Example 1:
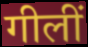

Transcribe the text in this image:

गीलीं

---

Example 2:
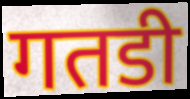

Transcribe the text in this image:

गतडी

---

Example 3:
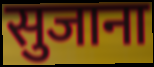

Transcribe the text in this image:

सुजाना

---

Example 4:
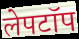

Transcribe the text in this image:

लेपटॉप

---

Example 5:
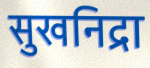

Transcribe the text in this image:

सुखनिद्रा